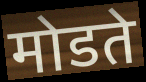
मोडते